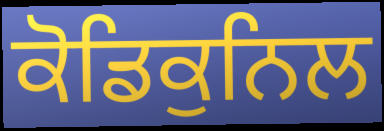
ਕੋਡਿਕੁਨਿਲ